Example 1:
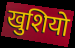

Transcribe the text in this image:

खुशियो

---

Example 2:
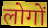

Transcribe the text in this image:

लोगों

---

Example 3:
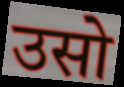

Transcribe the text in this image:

उसो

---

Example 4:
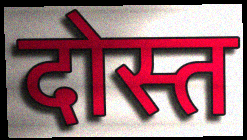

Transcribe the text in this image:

दोस्त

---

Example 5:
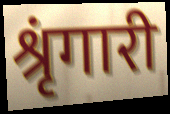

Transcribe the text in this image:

श्रृंगारी